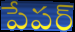
పేపర్